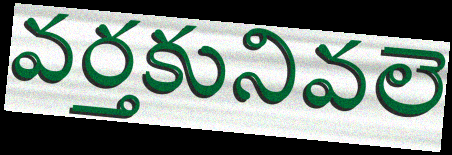
వర్తకునివలె